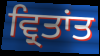
ਵ੍ਰਿਤਾਂਤ